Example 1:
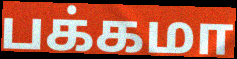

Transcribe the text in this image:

பக்கமா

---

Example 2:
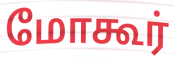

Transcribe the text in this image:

மோகூர்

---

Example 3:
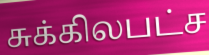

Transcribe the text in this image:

சுக்கிலபட்ச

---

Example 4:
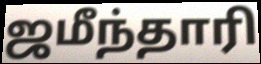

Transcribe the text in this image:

ஜமீந்தாரி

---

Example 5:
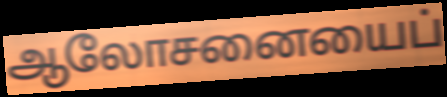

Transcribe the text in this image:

ஆலோசனையைப்